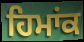
ਹਿਮਾਂਕ